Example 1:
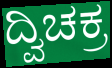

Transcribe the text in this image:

ದ್ವಿಚಕ್ರ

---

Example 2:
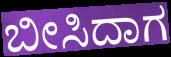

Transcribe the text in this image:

ಬೀಸಿದಾಗ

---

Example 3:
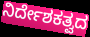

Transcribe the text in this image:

ನಿರ್ದೇಶಕತ್ವದ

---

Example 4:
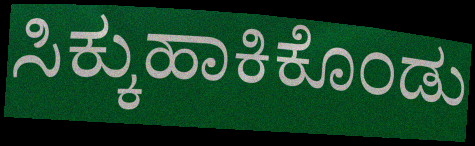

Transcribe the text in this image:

ಸಿಕ್ಕುಹಾಕಿಕೊಂಡು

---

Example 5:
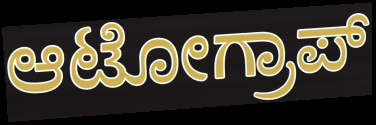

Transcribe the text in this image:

ಆಟೋಗ್ರಾಪ್